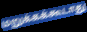
மறுக்கக்கூடாது